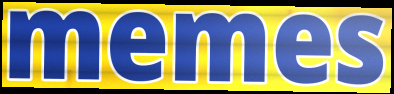
memes